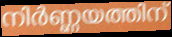
നിർണ്ണയത്തിന്